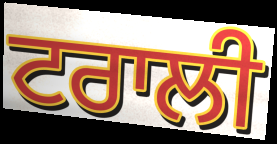
ਟਰਾਲੀ